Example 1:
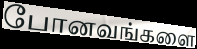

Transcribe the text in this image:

போனவங்களை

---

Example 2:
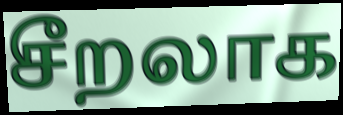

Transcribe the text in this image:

சீறலாக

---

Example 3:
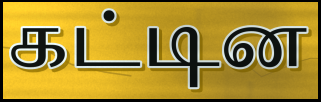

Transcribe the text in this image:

கட்டின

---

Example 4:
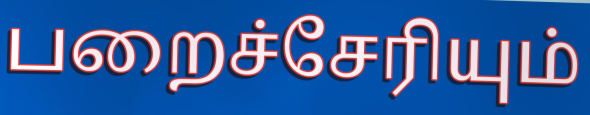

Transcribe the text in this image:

பறைச்சேரியும்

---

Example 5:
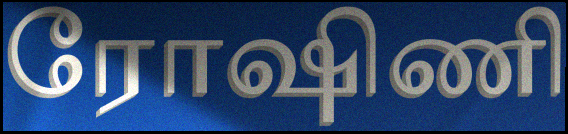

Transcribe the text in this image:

ரோஷிணி